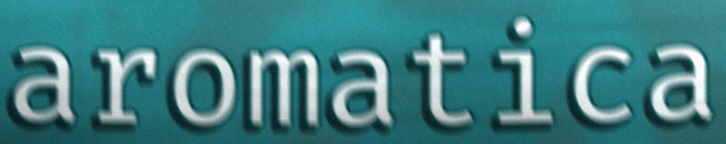
aromatica